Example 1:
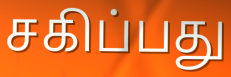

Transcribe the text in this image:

சகிப்பது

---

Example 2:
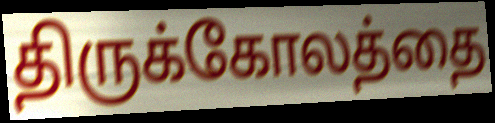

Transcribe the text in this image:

திருக்கோலத்தை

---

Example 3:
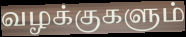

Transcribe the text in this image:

வழக்குகளும்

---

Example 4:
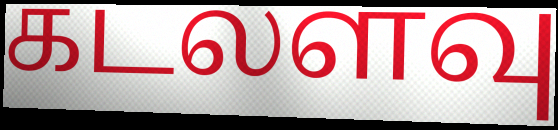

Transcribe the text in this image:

கடலளவு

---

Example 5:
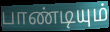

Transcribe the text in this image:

பாண்டியும்